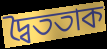
দ্বৈততাক